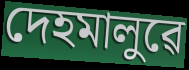
দেহমালুৱে